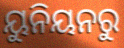
ୟୁନିୟନରୁ